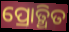
ପ୍ରୋତ୍ଥିତ